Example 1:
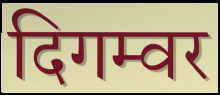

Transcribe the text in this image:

दिगम्वर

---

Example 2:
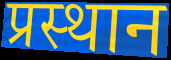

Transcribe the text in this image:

प्रस्थान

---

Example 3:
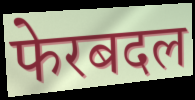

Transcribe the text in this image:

फेरबदल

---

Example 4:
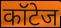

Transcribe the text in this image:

कॉटेज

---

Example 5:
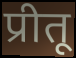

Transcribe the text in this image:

प्रीतू